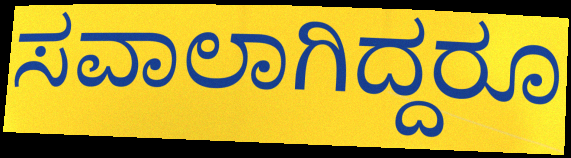
ಸವಾಲಾಗಿದ್ದರೂ